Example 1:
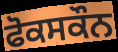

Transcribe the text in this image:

ਫੋਕਸਕੌਨ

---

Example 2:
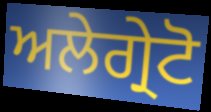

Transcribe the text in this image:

ਅਲੇਗ੍ਰੇਟੋ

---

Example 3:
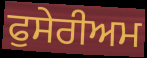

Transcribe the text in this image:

ਫੁਸੇਰੀਅਮ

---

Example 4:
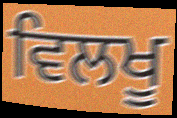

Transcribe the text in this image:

ਵਿਲਖੂ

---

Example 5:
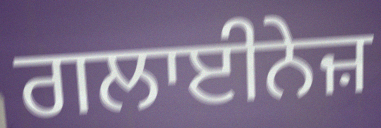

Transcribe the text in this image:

ਗਲਾਈਨੇਜ਼